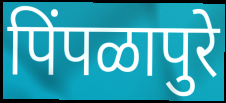
पिंपळापुरे